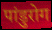
पांडुरोग